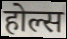
होल्स